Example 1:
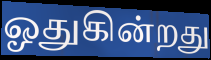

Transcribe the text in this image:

ஓதுகின்றது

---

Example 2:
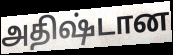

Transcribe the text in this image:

அதிஷ்டான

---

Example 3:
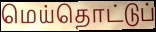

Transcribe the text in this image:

மெய்தொட்டுப்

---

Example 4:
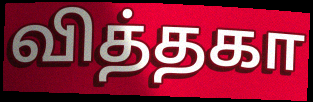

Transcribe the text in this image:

வித்தகா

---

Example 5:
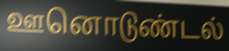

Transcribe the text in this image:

ஊனொடுண்டல்